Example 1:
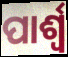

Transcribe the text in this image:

ପାର୍ଶ୍ୱ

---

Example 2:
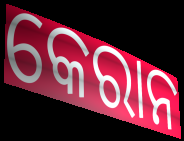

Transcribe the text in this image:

କେରାନ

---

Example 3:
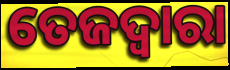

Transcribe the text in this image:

ତେଜଦ୍ୱାରା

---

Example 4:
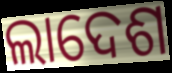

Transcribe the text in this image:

ଲାଦେଶ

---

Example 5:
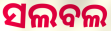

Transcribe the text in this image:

ସଲବଲ